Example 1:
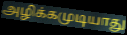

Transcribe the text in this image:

அழிக்கமுடியாது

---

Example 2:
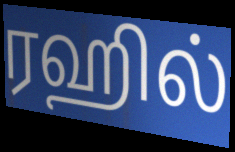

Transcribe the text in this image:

ரஹில்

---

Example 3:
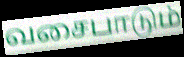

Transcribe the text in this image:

வசைபாடும்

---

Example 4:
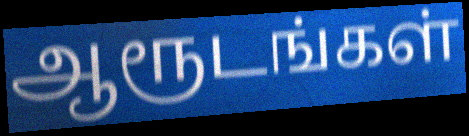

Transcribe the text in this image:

ஆரூடங்கள்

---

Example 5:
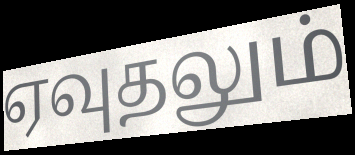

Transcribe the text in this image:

ஏவுதலும்